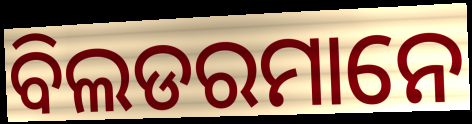
ବିଲଡରମାନେ